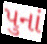
પુનાં